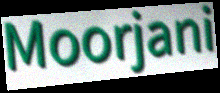
Moorjani